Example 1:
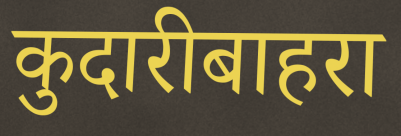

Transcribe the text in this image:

कुदारीबाहरा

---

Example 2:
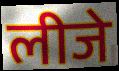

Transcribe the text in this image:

लीजे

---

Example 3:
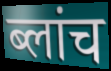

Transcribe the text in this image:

ब्लांच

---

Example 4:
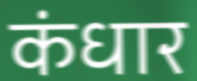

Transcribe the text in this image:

कंधार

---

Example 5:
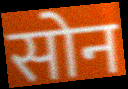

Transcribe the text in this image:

सोन